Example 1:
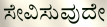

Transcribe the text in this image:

ಸೇವಿಸುವುದೇ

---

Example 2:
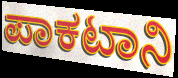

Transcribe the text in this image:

ಪಾಕಟಾನಿ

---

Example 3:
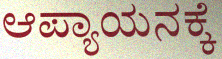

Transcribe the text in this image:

ಆಪ್ಯಾಯನಕ್ಕೆ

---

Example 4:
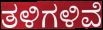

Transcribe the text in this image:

ತಳಿಗಳಿವೆ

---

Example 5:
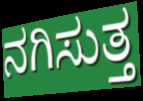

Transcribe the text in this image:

ನಗಿಸುತ್ತ